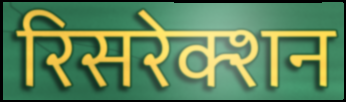
रिसरेक्शन